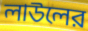
লাউলের